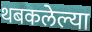
थबकलेल्या